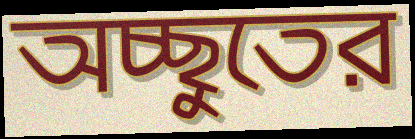
অচ্ছুতের